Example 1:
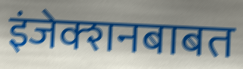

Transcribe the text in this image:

इंजेक्शनबाबत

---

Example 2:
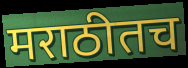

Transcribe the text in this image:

मराठीतच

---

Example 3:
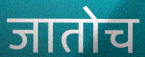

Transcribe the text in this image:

जातोच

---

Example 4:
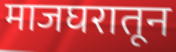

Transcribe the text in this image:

माजघरातून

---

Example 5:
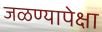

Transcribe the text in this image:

जळण्यापेक्षा